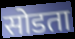
सोडता